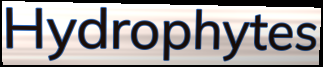
Hydrophytes